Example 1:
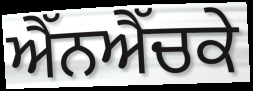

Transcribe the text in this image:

ਐੱਨਐੱਚਕੇ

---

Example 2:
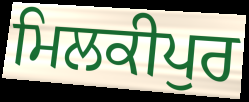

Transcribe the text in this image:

ਮਿਲਕੀਪੁਰ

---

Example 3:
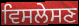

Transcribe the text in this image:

ਵਿਸਲੇਸਣ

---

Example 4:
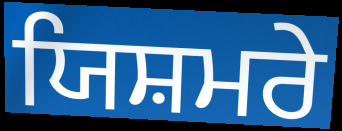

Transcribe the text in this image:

ਯਿਸ਼ਮਰੇ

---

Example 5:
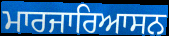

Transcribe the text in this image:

ਮਾਰਜਾਰਿਆਸਨ